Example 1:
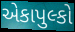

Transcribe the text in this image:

એકાપુલ્કો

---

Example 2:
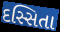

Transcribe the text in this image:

દસ્સિતા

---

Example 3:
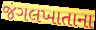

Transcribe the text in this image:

જંગલખાતાના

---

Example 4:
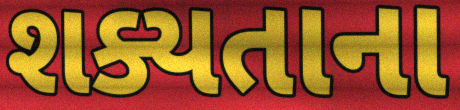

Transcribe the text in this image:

શક્યતાના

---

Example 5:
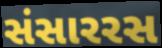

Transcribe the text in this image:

સંસારરસ